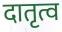
दातृत्व